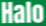
Halo